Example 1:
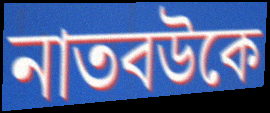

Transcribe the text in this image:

নাতবউকে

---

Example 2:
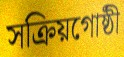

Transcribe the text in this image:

সক্রিয়গোষ্ঠী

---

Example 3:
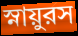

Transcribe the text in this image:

স্নায়ুরস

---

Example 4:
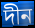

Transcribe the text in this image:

দীন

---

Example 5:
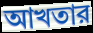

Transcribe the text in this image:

আখতার